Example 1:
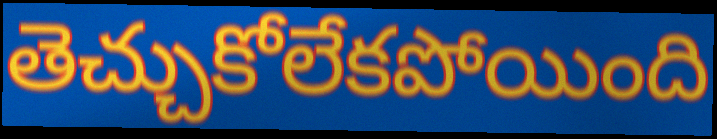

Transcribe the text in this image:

తెచ్చుకోలేకపోయింది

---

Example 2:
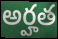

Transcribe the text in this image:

అర్హత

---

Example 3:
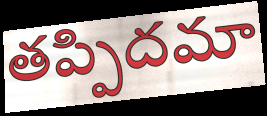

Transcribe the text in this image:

తప్పిదమా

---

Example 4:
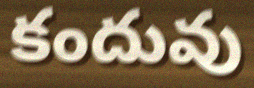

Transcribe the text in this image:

కందువు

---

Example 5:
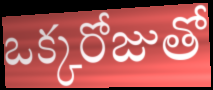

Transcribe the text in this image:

ఒక్కరోజుతో